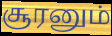
சூரனும்